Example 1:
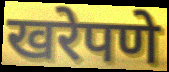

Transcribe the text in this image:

खरेपणे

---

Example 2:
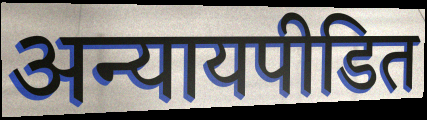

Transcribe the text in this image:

अन्यायपीडित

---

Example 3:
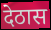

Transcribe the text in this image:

देठास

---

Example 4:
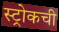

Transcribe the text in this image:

स्ट्रोकची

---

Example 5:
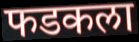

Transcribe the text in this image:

फडकला